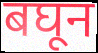
बघून